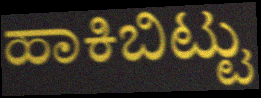
ಹಾಕಿಬಿಟ್ಟು